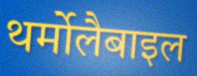
थर्मोलैबाइल